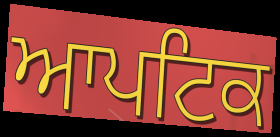
ਆਪਟਿਕ